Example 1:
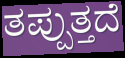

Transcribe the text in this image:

ತಪ್ಪುತ್ತದೆ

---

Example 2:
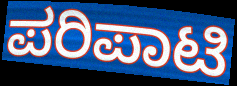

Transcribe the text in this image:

ಪರಿಪಾಟಿ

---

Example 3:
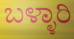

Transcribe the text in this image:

ಬಳ್ಳಾರಿ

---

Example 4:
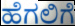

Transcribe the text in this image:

ಹೆಗಲಿಗೆ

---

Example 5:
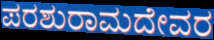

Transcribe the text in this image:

ಪರಶುರಾಮದೇವರ